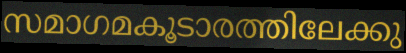
സമാഗമകൂടാരത്തിലേക്കു